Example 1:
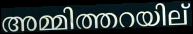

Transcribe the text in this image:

അമ്മിത്തറയില്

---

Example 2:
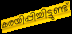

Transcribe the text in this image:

കരയിപ്പിച്ചിട്ടുണ്ട്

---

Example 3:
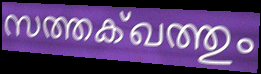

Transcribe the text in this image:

സത്തക്ഖത്തും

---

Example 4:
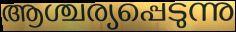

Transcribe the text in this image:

ആശ്ചര്യപ്പെടുന്നു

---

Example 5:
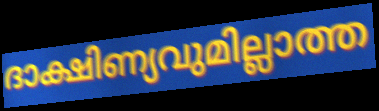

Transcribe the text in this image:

ദാക്ഷിണ്യവുമില്ലാത്ത